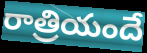
రాత్రియందే